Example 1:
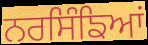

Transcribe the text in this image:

ਨਰਸਿੰਙਿਆਂ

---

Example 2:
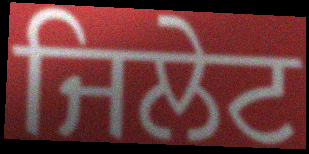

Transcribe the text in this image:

ਜਿਲੇਟ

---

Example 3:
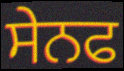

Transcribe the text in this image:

ਸੇਨਫ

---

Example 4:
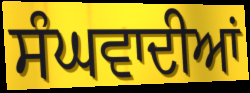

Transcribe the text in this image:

ਸੰਘਵਾਦੀਆਂ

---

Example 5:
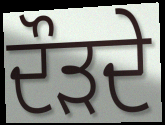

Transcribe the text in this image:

ਦੌੜਦੇ